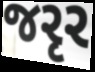
જરૃર